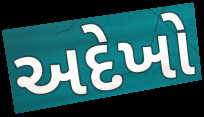
અદેખો